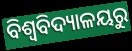
ବିଶ୍ୱବିଦ୍ୟାଳୟରୁ